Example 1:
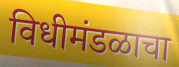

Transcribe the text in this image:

विधीमंडळाचा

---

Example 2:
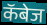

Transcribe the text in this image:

कॅबेज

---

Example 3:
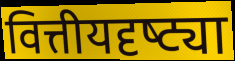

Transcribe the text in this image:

वित्तीयदृष्ट्या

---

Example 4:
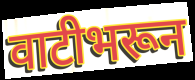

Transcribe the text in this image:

वाटीभरून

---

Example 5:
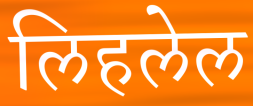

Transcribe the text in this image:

लिहलेल